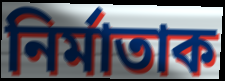
নিৰ্মাতাক